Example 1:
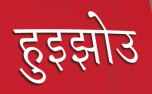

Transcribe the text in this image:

हुइझोउ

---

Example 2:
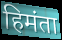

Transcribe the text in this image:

हिमंता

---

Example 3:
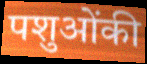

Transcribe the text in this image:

पशुओंकी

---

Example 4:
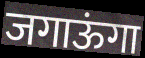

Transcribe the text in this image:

जगाऊंगा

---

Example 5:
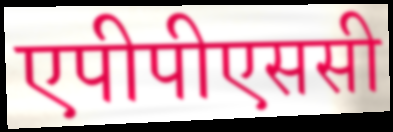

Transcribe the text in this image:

एपीपीएससी